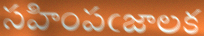
సహింపఁజాలక